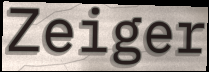
Zeiger